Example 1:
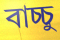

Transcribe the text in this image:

বাচ্চু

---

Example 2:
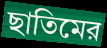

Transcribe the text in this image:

ছাতিমের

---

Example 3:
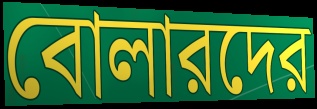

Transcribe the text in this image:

বোলারদের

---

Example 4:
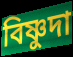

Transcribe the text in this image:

বিষ্ণুদা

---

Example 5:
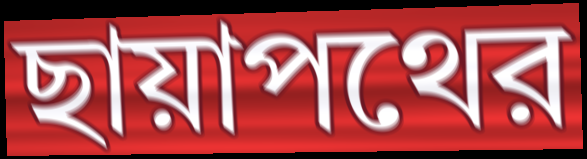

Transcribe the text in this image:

ছায়াপথের